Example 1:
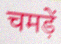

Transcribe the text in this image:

चमड़ें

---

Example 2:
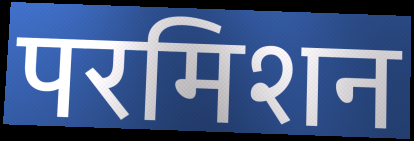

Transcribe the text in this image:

परमिशन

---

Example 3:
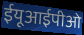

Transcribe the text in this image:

ईयूआईपीओ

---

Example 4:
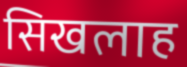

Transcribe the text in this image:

सिखलाह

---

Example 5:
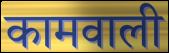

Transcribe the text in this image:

कामवाली